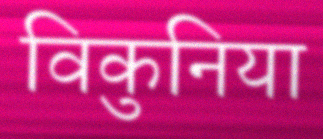
विकुनिया